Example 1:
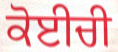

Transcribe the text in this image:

ਕੋਈਚੀ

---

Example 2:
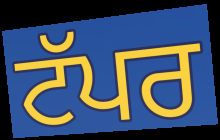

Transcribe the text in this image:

ਟੱਪਰ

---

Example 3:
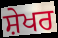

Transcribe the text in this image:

ਸ਼ੇਖਰ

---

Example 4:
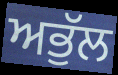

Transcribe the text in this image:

ਅਭੁੱਲ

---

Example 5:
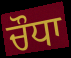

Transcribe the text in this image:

ਚੌਧਾ